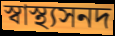
স্বাস্থ্যসনদ